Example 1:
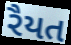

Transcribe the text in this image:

રૈયત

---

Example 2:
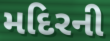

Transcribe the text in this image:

મદિરની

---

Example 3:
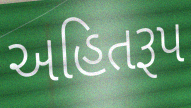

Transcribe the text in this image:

અહિતરૂપ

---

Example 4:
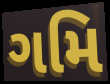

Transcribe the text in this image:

ગમિ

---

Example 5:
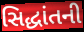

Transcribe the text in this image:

સિદ્ધાંતની